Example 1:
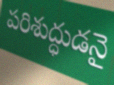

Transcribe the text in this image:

పరిశుద్ధుడనై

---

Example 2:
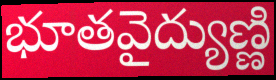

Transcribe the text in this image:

భూతవైద్యుణ్ణి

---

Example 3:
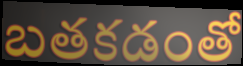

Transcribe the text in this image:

బతకడంతో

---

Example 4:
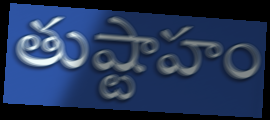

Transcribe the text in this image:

తుష్టాహం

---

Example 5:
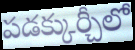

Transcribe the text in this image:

పడక్కుర్చీలో